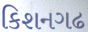
કિશનગઢ